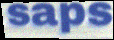
saps